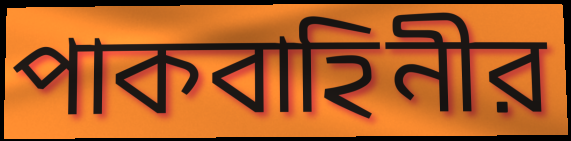
পাকবাহিনীর